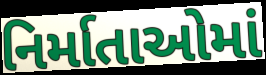
નિર્માતાઓમાં